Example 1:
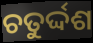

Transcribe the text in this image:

ଚତୁର୍ଦ୍ଦଶ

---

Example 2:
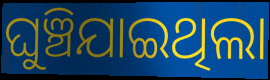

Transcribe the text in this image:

ଘୁଞ୍ଚିଯାଇଥିଲା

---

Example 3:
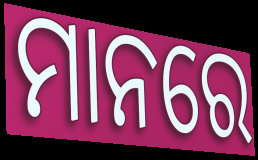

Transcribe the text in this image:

ମାନରେ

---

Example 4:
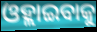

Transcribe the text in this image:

ଓହ୍ଲାଇବାକୁ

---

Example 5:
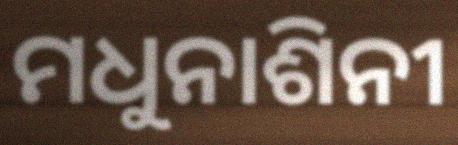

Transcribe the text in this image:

ମଧୁନାଶିନୀ